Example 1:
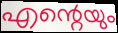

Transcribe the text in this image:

എന്റെയും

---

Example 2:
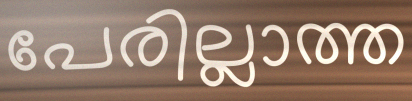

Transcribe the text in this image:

പേരില്ലാത്ത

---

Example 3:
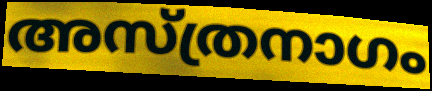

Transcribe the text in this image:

അസ്ത്രനാഗം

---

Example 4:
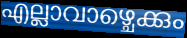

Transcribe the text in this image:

എല്ലാവാഴ്ചെക്കും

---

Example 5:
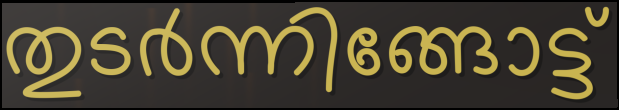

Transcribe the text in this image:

തുടർന്നിങ്ങോട്ട്